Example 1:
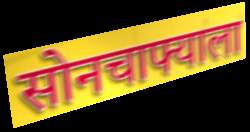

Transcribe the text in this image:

सोनचाफ्याला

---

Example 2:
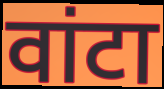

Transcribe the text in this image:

वांटा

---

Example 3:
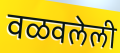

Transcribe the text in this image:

वळवलेली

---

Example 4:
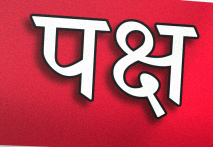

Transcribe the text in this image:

पक्ष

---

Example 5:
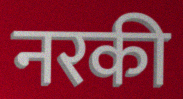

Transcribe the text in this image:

नरकी